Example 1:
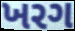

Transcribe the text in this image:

ખરગ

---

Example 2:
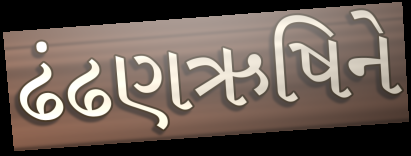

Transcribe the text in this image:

ઢંઢણઋષિને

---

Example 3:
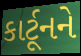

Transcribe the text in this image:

કાર્ટૂનને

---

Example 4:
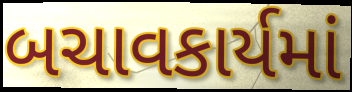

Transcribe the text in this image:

બચાવકાર્યમાં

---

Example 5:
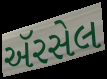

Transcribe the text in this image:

ઍરસેલ